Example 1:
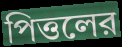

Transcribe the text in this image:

পিত্তলের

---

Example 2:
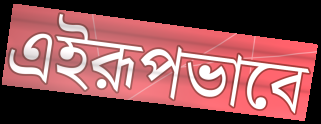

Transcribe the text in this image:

এইরূপভাবে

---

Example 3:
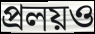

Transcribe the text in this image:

প্রলয়ও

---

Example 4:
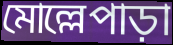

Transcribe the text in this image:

মোল্লেপাড়া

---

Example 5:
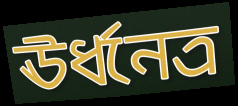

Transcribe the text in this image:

ঊর্ধনেত্র